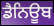
ਡੈਨਿਊਬ